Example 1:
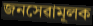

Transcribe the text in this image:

জনসেৱামূলক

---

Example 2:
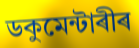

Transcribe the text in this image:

ডকুমেন্টাৰীৰ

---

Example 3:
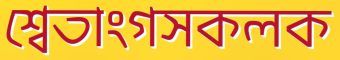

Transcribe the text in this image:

শ্বেতাংগসকলক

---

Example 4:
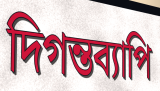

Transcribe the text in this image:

দিগন্তব্যাপি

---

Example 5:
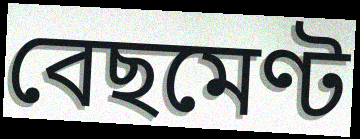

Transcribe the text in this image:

বেছমেণ্ট